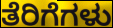
ತೆರಿಗೆಗಳು